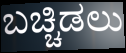
ಬಚ್ಚಿಡಲು